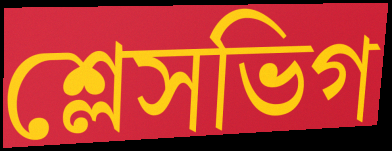
শ্লেসভিগ